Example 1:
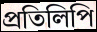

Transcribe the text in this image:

প্রতিলিপি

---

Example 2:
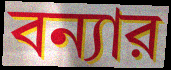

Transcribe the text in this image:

বন্যার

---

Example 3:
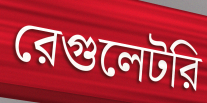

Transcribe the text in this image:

রেগুলেটরি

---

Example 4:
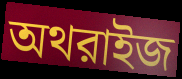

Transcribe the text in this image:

অথরাইজ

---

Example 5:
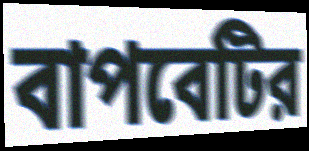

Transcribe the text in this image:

বাপবেটির